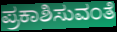
ಪ್ರಕಾಶಿಸುವಂತೆ